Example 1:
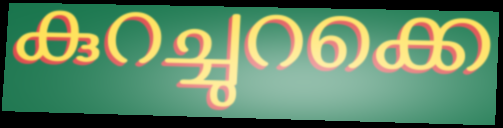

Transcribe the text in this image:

കുറച്ചുറക്കെ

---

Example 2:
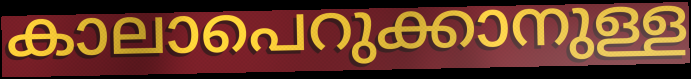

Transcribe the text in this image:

കാലാപെറുക്കാനുള്ള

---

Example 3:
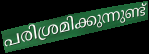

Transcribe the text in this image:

പരിശ്രമിക്കുന്നുണ്ട്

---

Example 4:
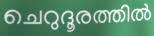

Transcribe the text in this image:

ചെറുദൂരത്തിൽ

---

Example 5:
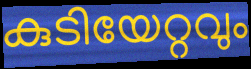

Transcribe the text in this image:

കുടിയേറ്റവും